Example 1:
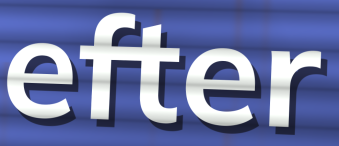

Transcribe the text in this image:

efter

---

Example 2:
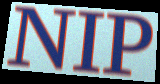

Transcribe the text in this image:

NIP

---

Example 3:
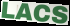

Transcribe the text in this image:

LACS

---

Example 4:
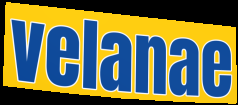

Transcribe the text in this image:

velanae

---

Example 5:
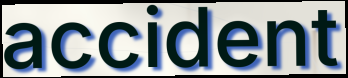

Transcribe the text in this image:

accident